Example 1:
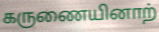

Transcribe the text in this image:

கருணையினாற்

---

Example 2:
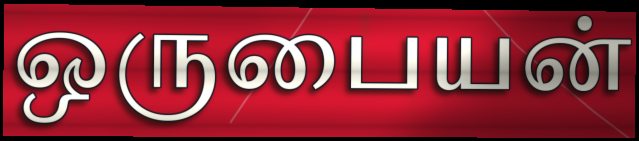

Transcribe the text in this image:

ஒருபையன்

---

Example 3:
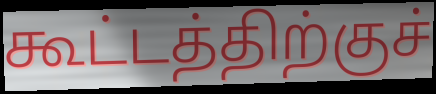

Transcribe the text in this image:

கூட்டத்திற்குச்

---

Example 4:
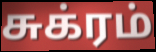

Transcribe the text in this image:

சுக்ரம்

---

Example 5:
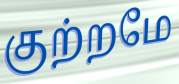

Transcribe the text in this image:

குற்றமே